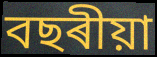
বছৰীয়া